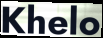
Khelo